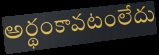
అర్థంకావటంలేదు